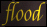
flood